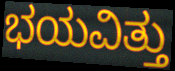
ಭಯವಿತ್ತು